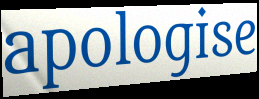
apologise